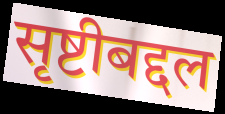
सृष्टीबद्दल